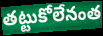
తట్టుకోలేనంత